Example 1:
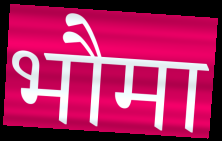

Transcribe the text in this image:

भौमा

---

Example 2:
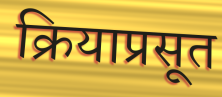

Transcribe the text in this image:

क्रियाप्रसूत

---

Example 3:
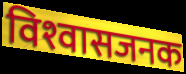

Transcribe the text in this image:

विश्वासजनक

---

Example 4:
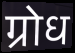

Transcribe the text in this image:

ग्रोध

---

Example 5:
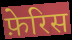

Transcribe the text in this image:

फ़ेरिस